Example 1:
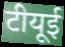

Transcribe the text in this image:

टीयूई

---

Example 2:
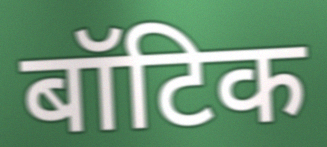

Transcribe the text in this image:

बॉटिक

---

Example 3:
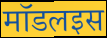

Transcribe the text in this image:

मॉडलइस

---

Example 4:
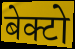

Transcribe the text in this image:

बेक्टो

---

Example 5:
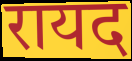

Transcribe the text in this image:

रायद